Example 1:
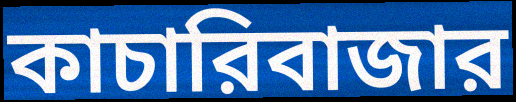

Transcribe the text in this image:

কাচারিবাজার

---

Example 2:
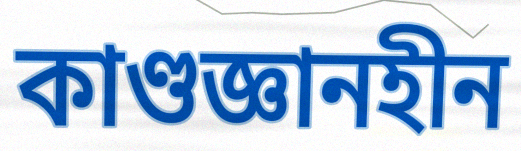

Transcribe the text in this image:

কাণ্ডজ্ঞানহীন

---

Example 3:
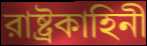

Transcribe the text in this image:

রাষ্ট্রকাহিনী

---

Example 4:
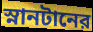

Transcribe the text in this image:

স্নানটানের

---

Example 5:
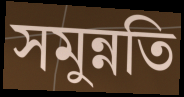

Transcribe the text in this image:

সমুন্নতি